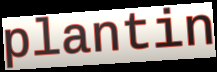
plantin